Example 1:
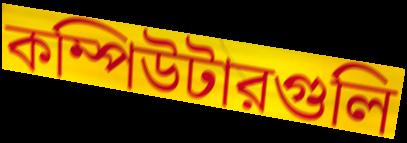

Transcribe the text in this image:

কম্পিউটারগুলি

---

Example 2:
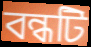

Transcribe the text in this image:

বন্ধটি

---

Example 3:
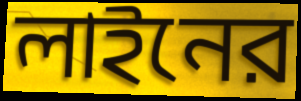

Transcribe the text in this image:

লাইনের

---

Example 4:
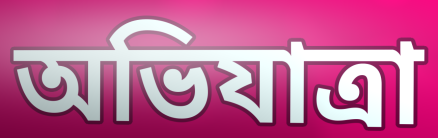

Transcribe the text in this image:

অভিযাত্রা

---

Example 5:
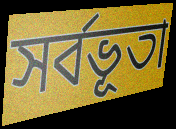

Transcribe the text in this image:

সর্বভূতা